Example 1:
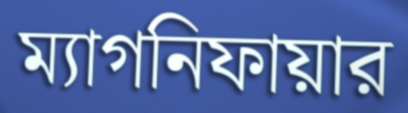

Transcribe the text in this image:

ম্যাগনিফায়ার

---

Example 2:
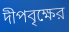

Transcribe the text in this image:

দীপবৃক্ষের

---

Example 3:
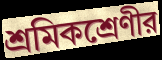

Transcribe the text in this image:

শ্রমিকশ্রেণীর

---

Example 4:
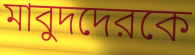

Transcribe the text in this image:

মাবুদদেরকে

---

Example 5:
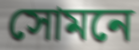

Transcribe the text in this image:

সোমনে